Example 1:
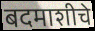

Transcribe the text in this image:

बदमाशीचे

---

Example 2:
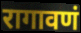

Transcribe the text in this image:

रागावणं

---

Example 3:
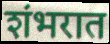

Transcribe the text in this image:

शंभरात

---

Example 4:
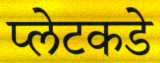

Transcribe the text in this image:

प्लेटकडे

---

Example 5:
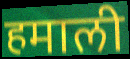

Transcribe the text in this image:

हमाली